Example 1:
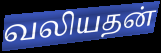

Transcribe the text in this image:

வலியதன்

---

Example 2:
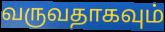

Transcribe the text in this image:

வருவதாகவும்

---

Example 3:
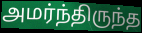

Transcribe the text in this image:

அமர்ந்திருந்த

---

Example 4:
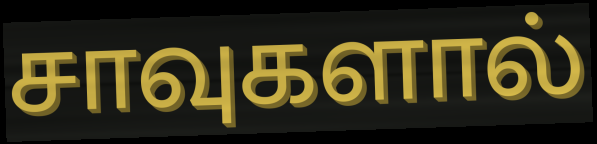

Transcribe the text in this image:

சாவுகளால்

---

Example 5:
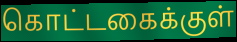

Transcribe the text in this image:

கொட்டகைக்குள்